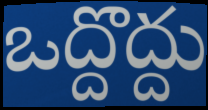
ఒద్దొద్దు